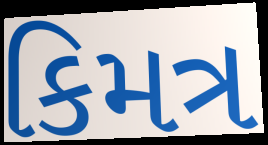
કિમત્ર